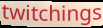
twitchings